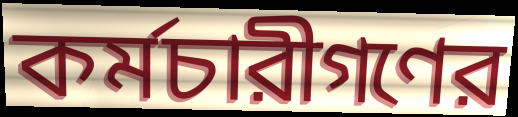
কর্মচারীগণের